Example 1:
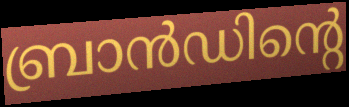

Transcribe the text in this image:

ബ്രാൻഡിന്റെ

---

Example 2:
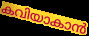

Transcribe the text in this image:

കവിയാകാൻ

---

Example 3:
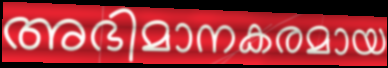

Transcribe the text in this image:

അഭിമാനകരമായ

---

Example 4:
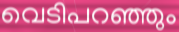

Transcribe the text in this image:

വെടിപറഞ്ഞും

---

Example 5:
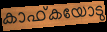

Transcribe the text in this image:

കാഫ്കയോടു